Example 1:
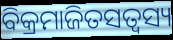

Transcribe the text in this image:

ବିକ୍ରମାଜିତସତ୍ଵସ୍ୟ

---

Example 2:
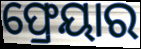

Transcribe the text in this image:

ଫ୍ରେୟାର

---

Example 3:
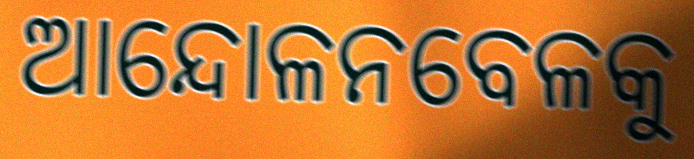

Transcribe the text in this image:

ଆନ୍ଦୋଳନବେଳକୁ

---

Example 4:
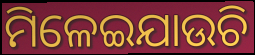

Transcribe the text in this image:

ମିଳେଇଯାଉଚି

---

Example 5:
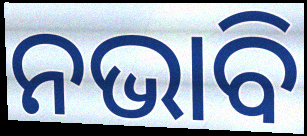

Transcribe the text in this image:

ନଭାବି